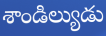
శాండిల్యుడు